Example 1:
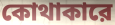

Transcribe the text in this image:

কোথাকারে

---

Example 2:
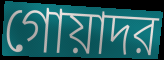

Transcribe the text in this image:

গোয়াদর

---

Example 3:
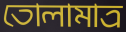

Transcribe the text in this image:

তোলামাত্র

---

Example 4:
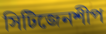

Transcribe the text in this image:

সিটিজেনশীপ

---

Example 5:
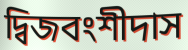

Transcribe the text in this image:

দ্বিজবংশীদাস